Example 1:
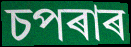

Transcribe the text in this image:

চপৰাৰ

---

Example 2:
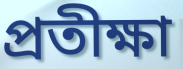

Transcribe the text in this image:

প্ৰতীক্ষা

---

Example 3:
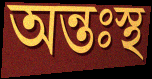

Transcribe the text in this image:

অন্তঃস্থ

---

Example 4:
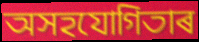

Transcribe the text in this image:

অসহযোগিতাৰ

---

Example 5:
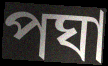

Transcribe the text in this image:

পঘা